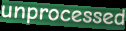
unprocessed